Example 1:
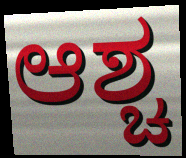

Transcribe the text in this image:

ಆಶ್ಚ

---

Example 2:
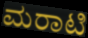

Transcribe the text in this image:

ಮರಾಟಿ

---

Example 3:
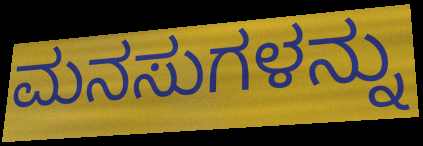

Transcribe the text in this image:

ಮನಸುಗಳನ್ನು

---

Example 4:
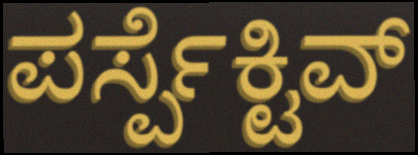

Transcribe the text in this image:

ಪರ್ಸ್ಪೆಕ್ಟಿವ್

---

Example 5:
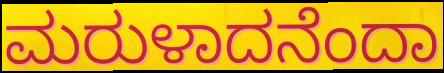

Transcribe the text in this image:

ಮರುಳಾದನೆಂದಾ